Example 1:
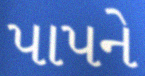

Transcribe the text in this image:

પાપને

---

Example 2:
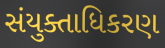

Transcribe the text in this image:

સંયુક્તાધિકરણ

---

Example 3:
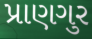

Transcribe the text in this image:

પ્રાણગુર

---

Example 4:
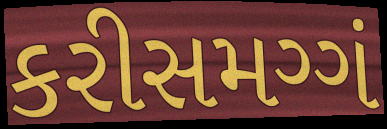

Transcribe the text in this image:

કરીસમગ્ગં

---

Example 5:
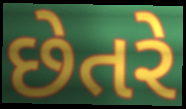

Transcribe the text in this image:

છેતરે